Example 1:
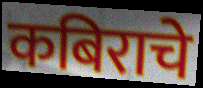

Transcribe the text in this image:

कबिराचे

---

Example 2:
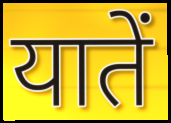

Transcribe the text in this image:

यातें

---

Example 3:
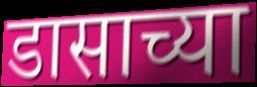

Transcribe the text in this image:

डासाच्या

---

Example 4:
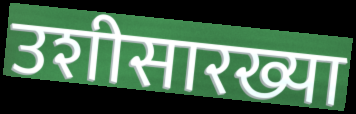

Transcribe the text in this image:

उशीसारख्या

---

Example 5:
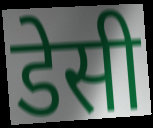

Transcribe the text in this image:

डेसी